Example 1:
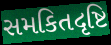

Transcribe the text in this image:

સમકિતદૃષ્ટિ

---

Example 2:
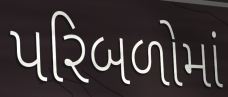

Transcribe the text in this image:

પરિબળોમાં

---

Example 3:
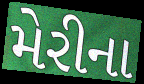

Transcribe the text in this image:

મેરીના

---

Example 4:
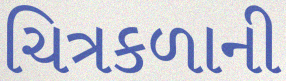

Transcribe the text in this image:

ચિત્રકળાની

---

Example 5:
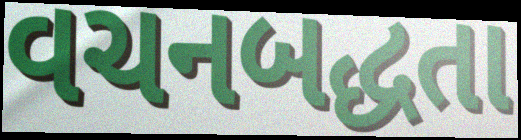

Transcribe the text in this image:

વચનબદ્ધતા